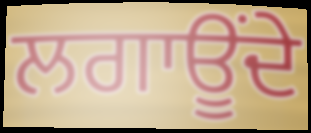
ਲਗਾਊਂਦੇ